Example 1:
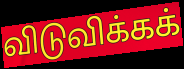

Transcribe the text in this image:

விடுவிக்கக்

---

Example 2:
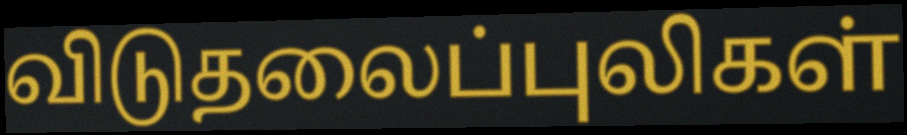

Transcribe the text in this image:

விடுதலைப்புலிகள்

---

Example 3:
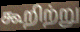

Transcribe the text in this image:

கூறிற்று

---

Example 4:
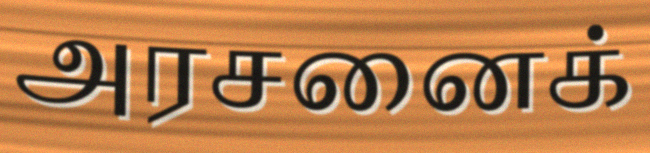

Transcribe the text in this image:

அரசனைக்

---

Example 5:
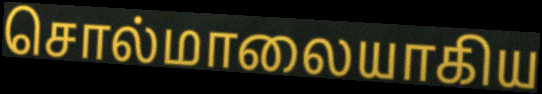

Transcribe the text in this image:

சொல்மாலையாகிய